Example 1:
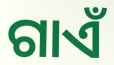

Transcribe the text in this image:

ଗାଏଁ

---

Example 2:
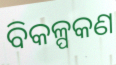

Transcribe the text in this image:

ବିକଳ୍ପକଣ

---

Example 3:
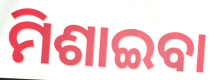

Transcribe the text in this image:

ମିଶାଇବା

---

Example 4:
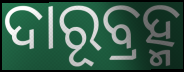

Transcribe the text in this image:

ଦାରୂବ୍ରହ୍ମ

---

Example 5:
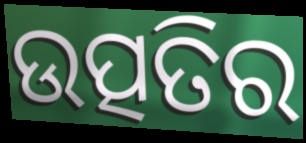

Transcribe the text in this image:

ଉତ୍ପତିର